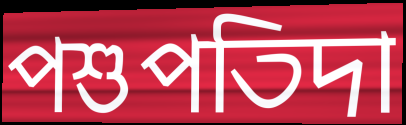
পশুপতিদা